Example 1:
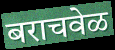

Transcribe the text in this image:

बराचवेळ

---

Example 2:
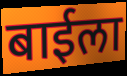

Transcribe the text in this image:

बाईला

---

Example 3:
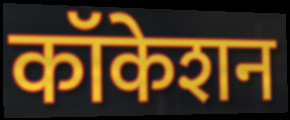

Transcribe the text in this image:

कॉकेशन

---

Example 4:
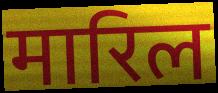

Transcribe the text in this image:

मारिल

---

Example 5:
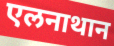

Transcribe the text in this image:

एलनाथान